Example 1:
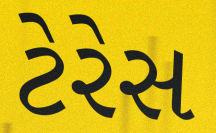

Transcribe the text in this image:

ટેરેસ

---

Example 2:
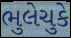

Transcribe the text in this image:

ભુલેચુકે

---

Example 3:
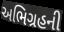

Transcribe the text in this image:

અભિગ્રહની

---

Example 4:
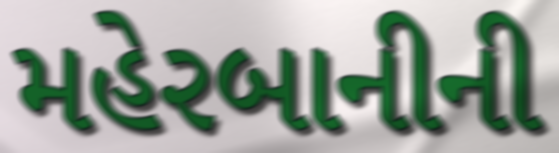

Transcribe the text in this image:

મહેરબાનીની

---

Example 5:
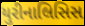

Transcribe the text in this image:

યુરીનાલિસિસ